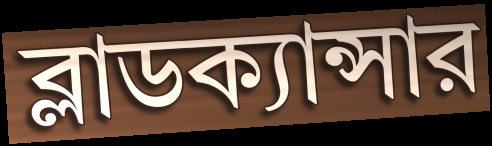
ব্লাডক্যান্সার